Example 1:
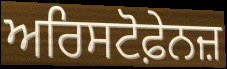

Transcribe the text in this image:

ਅਰਿਸਟੋਫ਼ੇਨਜ਼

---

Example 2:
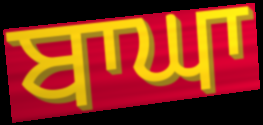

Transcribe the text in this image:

ਬਾਘਾ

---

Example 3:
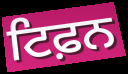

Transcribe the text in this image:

ਟਿਫ਼ਨ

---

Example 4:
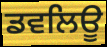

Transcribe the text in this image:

ਡਵਲਿਊ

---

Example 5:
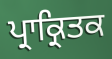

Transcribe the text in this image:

ਪ੍ਰਾਕ੍ਰਿਤਕ